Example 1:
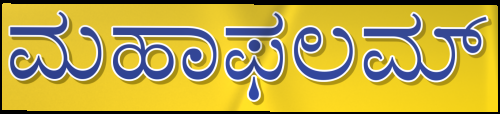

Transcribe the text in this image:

ಮಹಾಫಲಮ್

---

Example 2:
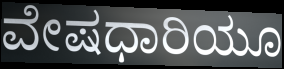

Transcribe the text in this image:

ವೇಷಧಾರಿಯೂ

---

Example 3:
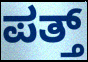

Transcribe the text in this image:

ಪತ್ತ್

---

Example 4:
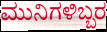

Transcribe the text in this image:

ಮುನಿಗಳಿಬ್ಬರ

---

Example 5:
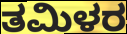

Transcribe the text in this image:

ತಮಿಳರ